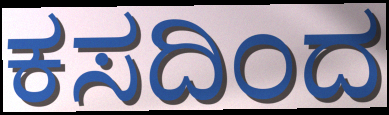
ಕಸದಿಂದ